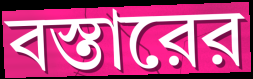
বস্তারের